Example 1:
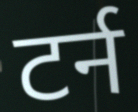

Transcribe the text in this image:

टर्न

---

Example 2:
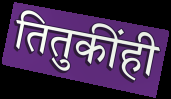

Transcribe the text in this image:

तितुकींही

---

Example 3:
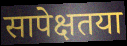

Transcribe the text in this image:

सापेक्षतया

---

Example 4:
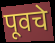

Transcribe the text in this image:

पूवचे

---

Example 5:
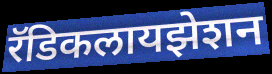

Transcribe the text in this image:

रॅडिकलायझेशन